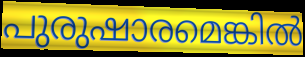
പുരുഷാരമെങ്കിൽ